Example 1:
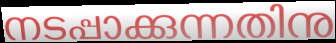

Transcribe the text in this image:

നടപ്പാക്കുന്നതിനു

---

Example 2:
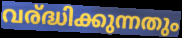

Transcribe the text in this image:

വര്ദ്ധിക്കുന്നതും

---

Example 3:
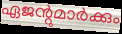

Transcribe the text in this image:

ഏജന്റുമാർക്കും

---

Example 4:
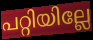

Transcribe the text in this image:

പറ്റിയില്ലേ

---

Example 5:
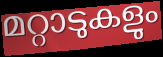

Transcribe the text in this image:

മറ്റാടുകളും